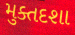
મુક્તદશા